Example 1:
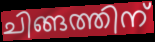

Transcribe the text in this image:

ചിങ്ങത്തിന്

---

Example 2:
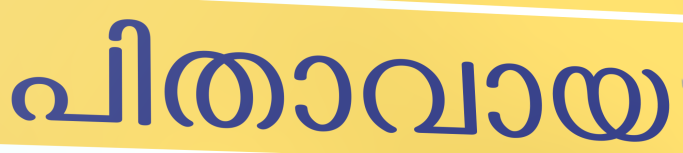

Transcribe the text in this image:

പിതാവായ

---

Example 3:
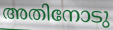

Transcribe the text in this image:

അതിനോടു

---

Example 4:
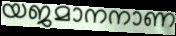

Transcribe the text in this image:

യജമാനനാണ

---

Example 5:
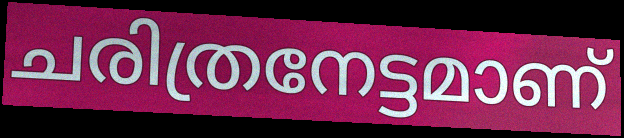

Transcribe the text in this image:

ചരിത്രനേട്ടമാണ്